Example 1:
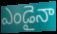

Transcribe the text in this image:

ఎండైనా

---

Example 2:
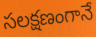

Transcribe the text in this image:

సలక్షణంగానే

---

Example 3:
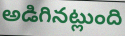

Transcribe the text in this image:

అడిగినట్లుంది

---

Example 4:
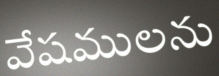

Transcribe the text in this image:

వేషములను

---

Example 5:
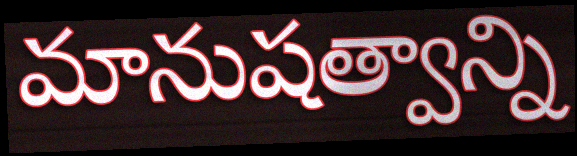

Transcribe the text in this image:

మానుషత్వాన్ని